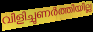
വിളിച്ചുണർത്തിയില്ല